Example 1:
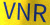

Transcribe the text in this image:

VNR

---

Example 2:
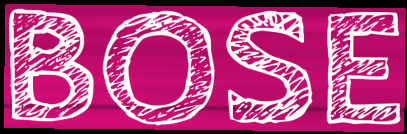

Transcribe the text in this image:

BOSE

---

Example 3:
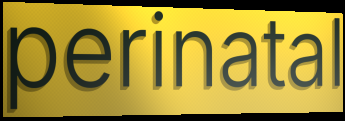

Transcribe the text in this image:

perinatal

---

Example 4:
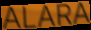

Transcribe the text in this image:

ALARA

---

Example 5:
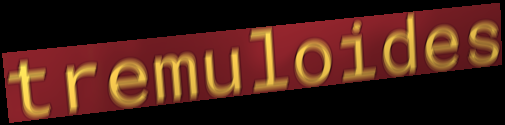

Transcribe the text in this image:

tremuloides